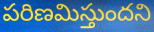
పరిణమిస్తుందని